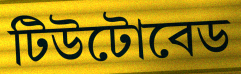
টিউটোবেড